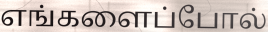
எங்களைப்போல்